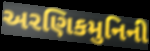
અરણિકમુનિની